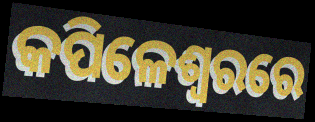
କପିଳେଶ୍ୱରରେ